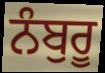
ਨੰਬੁਰੂ